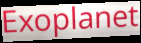
Exoplanet